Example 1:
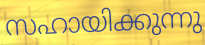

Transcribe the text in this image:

സഹായിക്കുന്നു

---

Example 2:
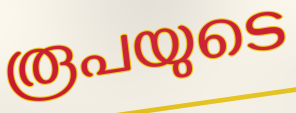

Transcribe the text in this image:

രൂപയുടെ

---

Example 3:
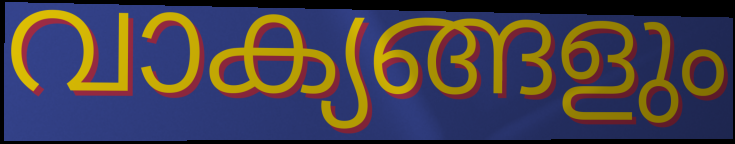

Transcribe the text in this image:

വാക്യങ്ങളും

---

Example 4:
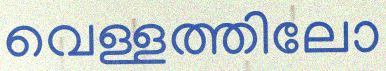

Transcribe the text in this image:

വെള്ളത്തിലോ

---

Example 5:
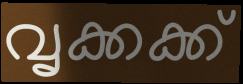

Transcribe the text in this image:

വൃക്കക്ക്